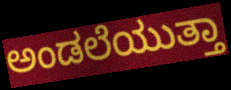
ಅಂಡಲೆಯುತ್ತಾ